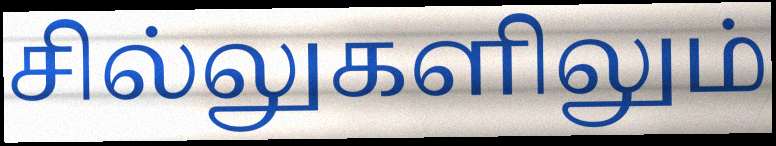
சில்லுகளிலும்